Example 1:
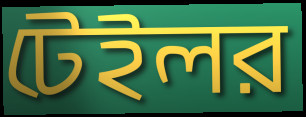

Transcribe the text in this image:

টেইলর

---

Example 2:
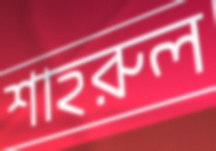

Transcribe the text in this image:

শাহরুল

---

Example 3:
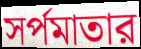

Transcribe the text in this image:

সর্পমাতার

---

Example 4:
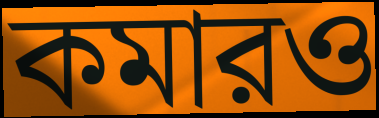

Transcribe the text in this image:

কমারও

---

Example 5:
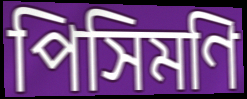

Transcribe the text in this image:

পিসিমণি